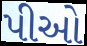
પીઓ